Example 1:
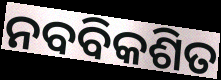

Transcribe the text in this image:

ନବବିକଶିତ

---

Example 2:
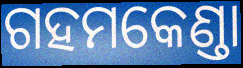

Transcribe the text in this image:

ଗହମକେଣ୍ଡା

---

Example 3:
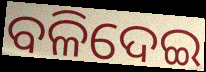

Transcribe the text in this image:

ବଳିଦେଇ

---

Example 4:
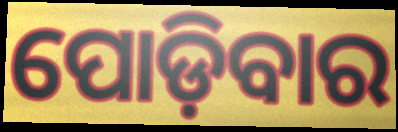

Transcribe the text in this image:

ପୋଡ଼ିବାର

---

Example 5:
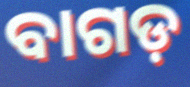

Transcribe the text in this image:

ବାଗଡ଼